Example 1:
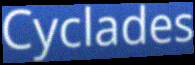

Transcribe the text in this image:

Cyclades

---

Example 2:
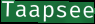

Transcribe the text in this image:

Taapsee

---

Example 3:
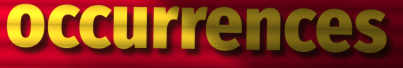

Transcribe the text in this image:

occurrences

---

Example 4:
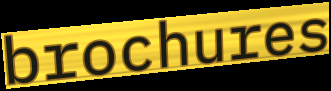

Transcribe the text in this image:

brochures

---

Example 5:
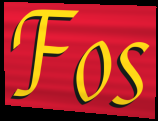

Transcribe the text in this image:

Fos